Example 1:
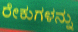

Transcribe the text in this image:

ರೇಕುಗಳನ್ನು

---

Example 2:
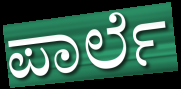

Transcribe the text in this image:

ಪಾರ್ಲೆ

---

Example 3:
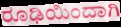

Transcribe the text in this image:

ರೂಢಿಯಿಂದಾಗಿ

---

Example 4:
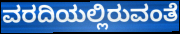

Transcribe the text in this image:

ವರದಿಯಲ್ಲಿರುವಂತೆ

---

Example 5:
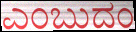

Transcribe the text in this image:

ಎಂಬುದಂ